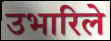
उभारिले